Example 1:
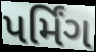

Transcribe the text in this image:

પર્મિંગ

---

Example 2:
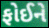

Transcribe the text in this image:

ફોઈને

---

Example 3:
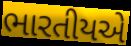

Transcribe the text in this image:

ભારતીયએ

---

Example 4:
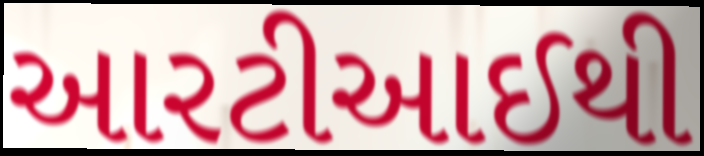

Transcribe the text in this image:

આરટીઆઈથી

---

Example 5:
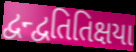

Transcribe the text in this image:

દ્વન્દ્વતિતિક્ષયા